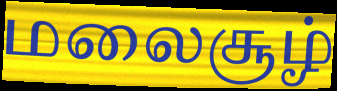
மலைசூழ்